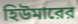
হিউমারের